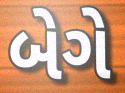
બેગે